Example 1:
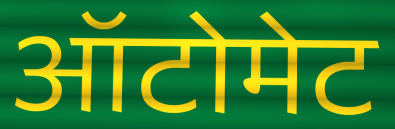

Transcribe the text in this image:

ऑटोमेट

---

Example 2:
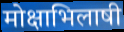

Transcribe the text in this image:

मोक्षाभिलाषी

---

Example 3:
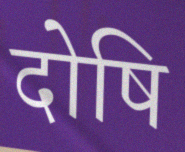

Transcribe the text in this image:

दोषि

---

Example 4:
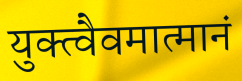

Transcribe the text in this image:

युक्त्वैवमात्मानं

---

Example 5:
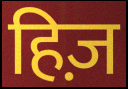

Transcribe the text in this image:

हिज़